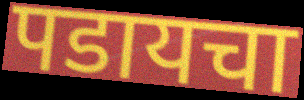
पडायचा